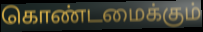
கொண்டமைக்கும்